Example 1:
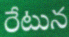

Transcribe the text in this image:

రేటున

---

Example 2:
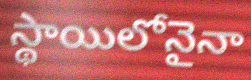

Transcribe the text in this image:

స్థాయిలోనైనా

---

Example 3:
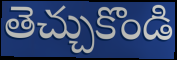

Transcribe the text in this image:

తెచ్చుకొండి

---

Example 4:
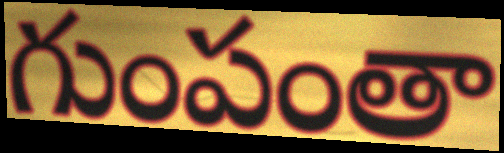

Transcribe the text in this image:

గుంపంతా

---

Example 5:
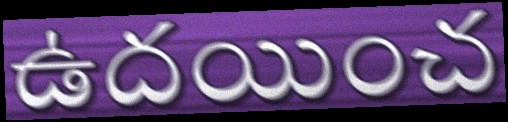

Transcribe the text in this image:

ఉదయించ